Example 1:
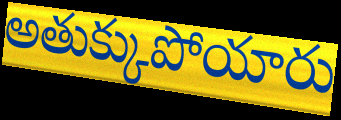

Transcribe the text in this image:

అతుక్కుపోయారు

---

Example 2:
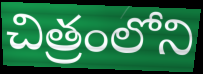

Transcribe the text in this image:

చిత్రంలోని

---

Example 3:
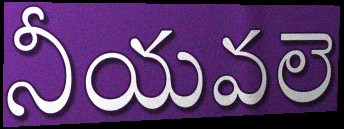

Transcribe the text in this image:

నీయవలె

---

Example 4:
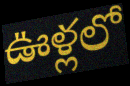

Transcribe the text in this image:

ఊళ్లలో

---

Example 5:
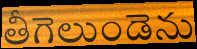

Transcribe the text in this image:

తీగెలుండెను